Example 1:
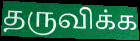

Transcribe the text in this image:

தருவிக்க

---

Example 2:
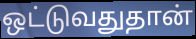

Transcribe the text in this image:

ஒட்டுவதுதான்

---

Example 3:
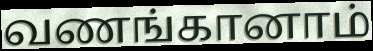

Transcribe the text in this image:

வணங்கானாம்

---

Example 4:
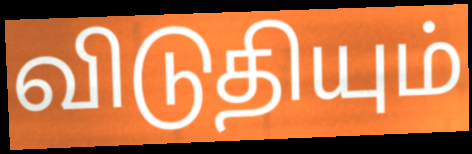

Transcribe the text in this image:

விடுதியும்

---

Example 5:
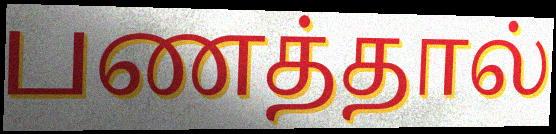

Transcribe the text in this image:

பணத்தால்